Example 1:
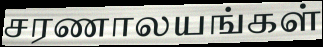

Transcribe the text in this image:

சரணாலயங்கள்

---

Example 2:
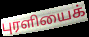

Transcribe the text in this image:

புரளியைக்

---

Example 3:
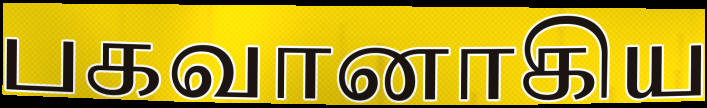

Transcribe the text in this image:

பகவானாகிய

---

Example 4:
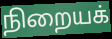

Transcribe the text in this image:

நிறையக்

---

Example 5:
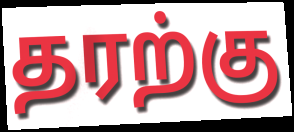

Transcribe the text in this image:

தரற்கு